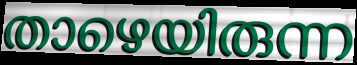
താഴെയിരുന്ന